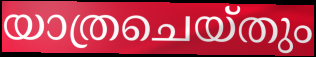
യാത്രചെയ്തും